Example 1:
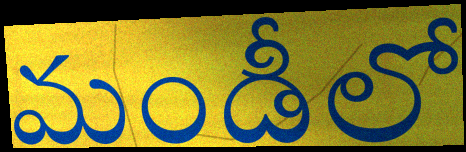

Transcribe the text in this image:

మండీలో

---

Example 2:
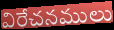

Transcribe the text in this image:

విరేచనములు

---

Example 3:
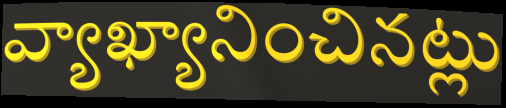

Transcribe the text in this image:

వ్యాఖ్యానించినట్లు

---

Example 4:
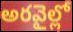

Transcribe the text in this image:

అరవైల్లో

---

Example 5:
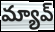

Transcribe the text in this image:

మ్యావ్